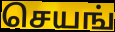
செயங்